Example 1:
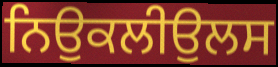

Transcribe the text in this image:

ਨਿਉਕਲੀਉਲਸ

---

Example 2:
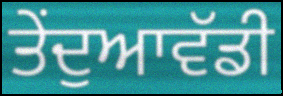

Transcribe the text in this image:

ਤੇਂਦੁਆਵੱਡੀ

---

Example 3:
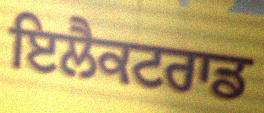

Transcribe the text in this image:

ਇਲੈਕਟਰਾਡ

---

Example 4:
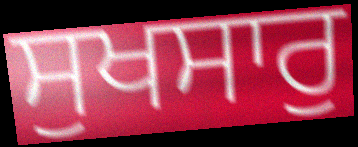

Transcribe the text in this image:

ਸੁਖਸਾਰੁ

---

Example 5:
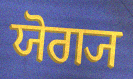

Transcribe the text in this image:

ਯੋਗ੍ਯ